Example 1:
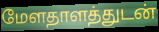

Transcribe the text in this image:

மேளதாளத்துடன்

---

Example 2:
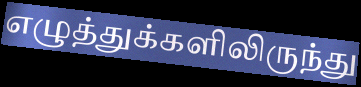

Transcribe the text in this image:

எழுத்துக்களிலிருந்து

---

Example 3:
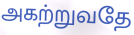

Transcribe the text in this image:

அகற்றுவதே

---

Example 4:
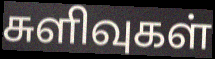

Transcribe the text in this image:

சுளிவுகள்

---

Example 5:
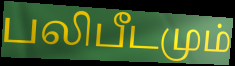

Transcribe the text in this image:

பலிபீடமும்